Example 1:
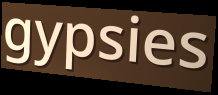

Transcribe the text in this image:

gypsies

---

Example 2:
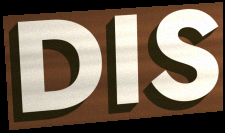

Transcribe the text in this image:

DIS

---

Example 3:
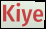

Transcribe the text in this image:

Kiye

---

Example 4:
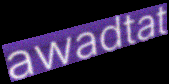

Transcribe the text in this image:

awadtat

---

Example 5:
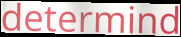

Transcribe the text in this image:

determind